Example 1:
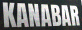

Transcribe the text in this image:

KANABAR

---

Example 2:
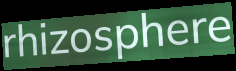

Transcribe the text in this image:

rhizosphere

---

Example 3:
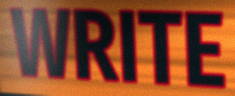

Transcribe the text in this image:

WRITE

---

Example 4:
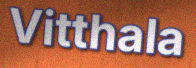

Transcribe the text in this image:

Vitthala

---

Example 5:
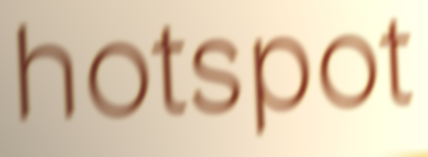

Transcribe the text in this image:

hotspot